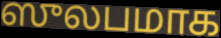
ஸுலபமாக